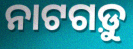
ନାଟଗଡ଼ୁ